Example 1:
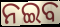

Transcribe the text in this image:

ନଇବ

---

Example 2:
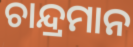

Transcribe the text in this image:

ଚାନ୍ଦ୍ରମାନ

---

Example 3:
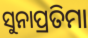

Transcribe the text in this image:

ସୁନାପ୍ରତିମା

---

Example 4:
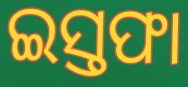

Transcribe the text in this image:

ଇସ୍ତଫା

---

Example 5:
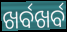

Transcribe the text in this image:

ଖର୍ବଖର୍ବ